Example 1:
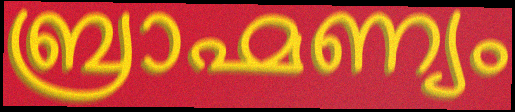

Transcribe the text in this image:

ബ്രാഹ്മണ്യം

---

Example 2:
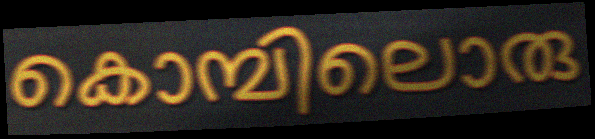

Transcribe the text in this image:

കൊമ്പിലൊരു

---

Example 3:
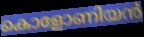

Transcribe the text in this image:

കൊളോണിയൻ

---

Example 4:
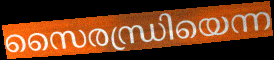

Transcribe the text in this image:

സൈരന്ധ്രിയെന്ന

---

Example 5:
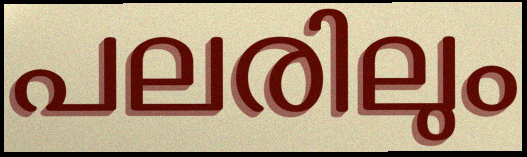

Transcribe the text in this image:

പലരിലും